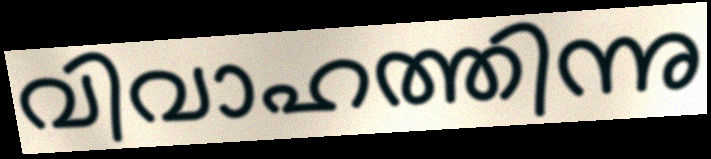
വിവാഹത്തിന്നു